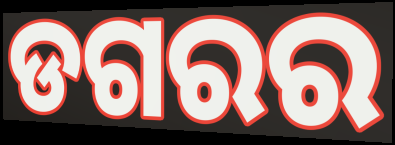
ଡଗରର